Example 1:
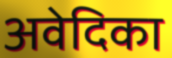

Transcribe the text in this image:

अवेदिका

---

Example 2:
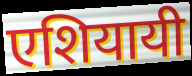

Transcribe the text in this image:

एशियायी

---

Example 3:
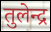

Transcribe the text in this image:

तुलेन्द्र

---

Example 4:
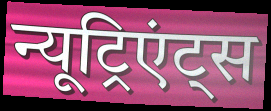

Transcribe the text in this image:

न्यूट्रिएंट्स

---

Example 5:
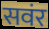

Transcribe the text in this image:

सवंर